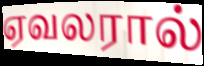
ஏவலரால்